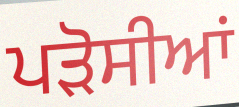
ਪੜੋਸੀਆਂ